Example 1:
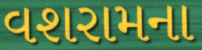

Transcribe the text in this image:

વશરામના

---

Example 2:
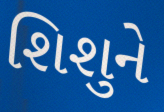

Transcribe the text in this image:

શિશુને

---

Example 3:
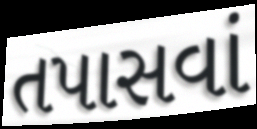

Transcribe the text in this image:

તપાસવાં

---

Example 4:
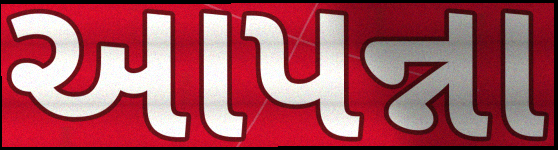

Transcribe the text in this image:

આપન્ના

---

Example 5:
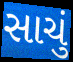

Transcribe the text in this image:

સાચું